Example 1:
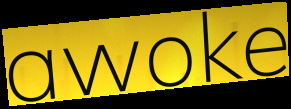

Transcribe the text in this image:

awoke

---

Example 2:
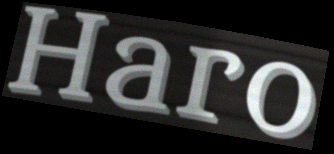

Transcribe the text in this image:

Haro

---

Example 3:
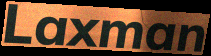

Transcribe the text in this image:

Laxman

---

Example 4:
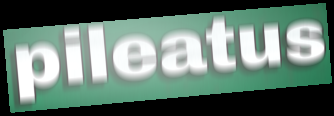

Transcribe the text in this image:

pileatus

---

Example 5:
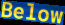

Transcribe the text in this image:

Below